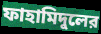
ফাহামিদুলের